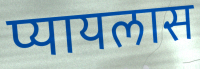
प्यायलास